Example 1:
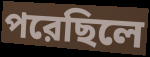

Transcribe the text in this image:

পরেছিলে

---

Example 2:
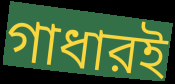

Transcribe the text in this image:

গাধারই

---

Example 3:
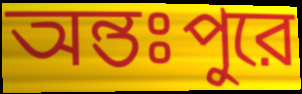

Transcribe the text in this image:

অন্তঃপুরে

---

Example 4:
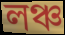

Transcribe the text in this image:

লঞ্চ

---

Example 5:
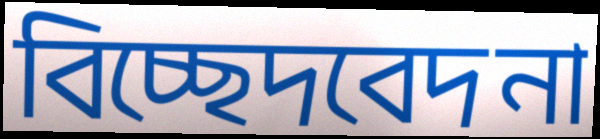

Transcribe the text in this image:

বিচ্ছেদবেদনা